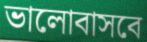
ভালোবাসবে